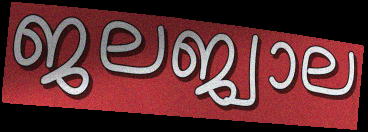
ജലജ്വാല